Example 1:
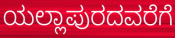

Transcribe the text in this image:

ಯಲ್ಲಾಪುರದವರೆಗೆ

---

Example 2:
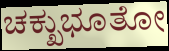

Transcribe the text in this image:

ಚಕ್ಖುಭೂತೋ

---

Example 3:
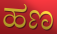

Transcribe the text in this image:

ಹಣ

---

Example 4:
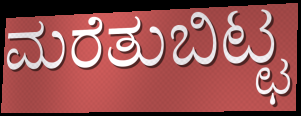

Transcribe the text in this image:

ಮರೆತುಬಿಟ್ಟ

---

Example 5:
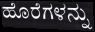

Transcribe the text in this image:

ಹೊರೆಗಳನ್ನು